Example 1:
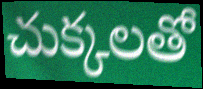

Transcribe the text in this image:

చుక్కలతో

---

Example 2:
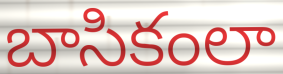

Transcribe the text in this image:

బాసికంలా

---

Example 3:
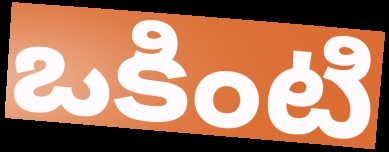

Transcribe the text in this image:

ఒకింటి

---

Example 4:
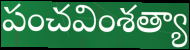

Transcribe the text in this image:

పంచవింశత్యా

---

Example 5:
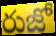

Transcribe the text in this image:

రుజో